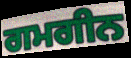
ਗਮਗੀਨ